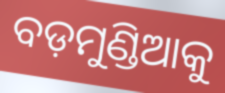
ବଡ଼ମୁଣ୍ଡିଆକୁ